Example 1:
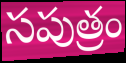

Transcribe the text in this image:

సపుత్రం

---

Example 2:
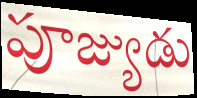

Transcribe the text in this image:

పూజ్యుడు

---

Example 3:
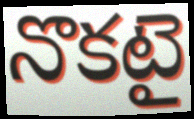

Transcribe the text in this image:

నొకటై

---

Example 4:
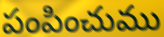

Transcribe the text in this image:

పంపించుము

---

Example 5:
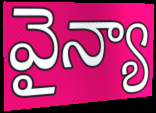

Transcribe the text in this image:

వైన్యా